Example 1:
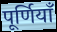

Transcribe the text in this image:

पूर्णियाँ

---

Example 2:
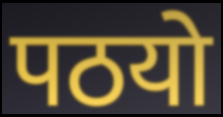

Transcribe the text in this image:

पठयो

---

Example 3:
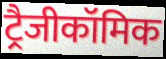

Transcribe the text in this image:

ट्रैजीकॉमिक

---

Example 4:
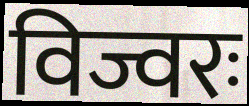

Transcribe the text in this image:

विज्वरः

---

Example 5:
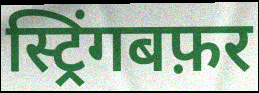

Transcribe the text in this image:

स्ट्रिंगबफ़र